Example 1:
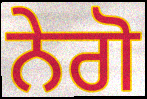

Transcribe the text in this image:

ਨੇਗੋ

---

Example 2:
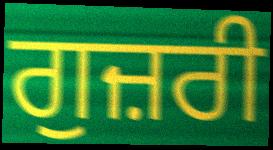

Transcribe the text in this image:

ਗੁਜ਼ਰੀ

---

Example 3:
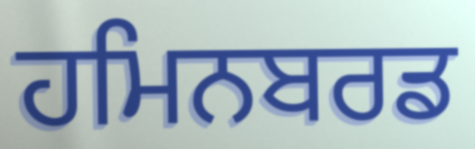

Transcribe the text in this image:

ਹਮਿਨਬਰਡ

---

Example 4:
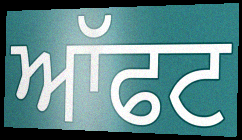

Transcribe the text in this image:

ਆੱਫਟ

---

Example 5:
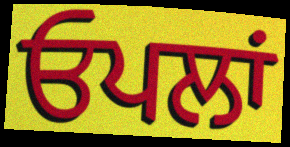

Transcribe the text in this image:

ਓਪਲਾਂ